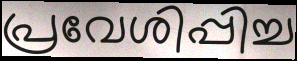
പ്രവേശിപ്പിച്ച